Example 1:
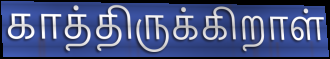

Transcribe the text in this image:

காத்திருக்கிறாள்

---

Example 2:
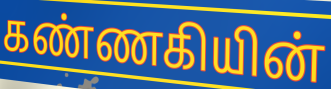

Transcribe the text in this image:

கண்ணகியின்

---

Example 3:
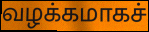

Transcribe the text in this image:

வழக்கமாகச்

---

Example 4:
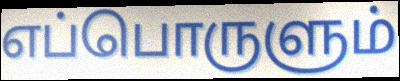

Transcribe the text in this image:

எப்பொருளும்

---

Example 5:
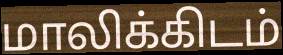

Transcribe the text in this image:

மாலிக்கிடம்